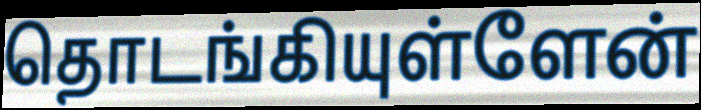
தொடங்கியுள்ளேன்